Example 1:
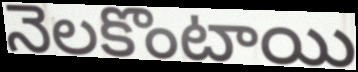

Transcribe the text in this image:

నెలకొంటాయి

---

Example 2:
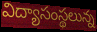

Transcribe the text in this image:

విద్యాసంస్థలున్న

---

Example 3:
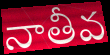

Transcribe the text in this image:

నాతీవ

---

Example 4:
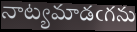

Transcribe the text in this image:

నాట్యమాడఁగను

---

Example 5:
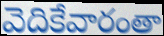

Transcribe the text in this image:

వెదికేవారంతా